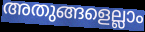
അതുങ്ങളെല്ലാം